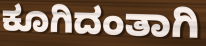
ಕೂಗಿದಂತಾಗಿ